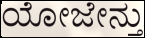
ಯೋಜೇನ್ತು